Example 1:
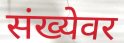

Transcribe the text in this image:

संख्येवर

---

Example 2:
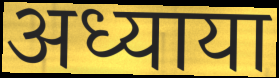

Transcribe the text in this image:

अध्याया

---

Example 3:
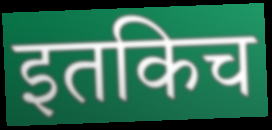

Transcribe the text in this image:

इतकिच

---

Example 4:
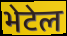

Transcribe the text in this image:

भेटेल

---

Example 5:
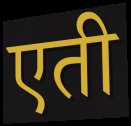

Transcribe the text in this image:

एती